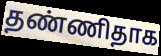
தண்ணிதாக